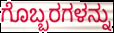
ಗೊಬ್ಬರಗಳನ್ನು